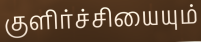
குளிர்ச்சியையும்